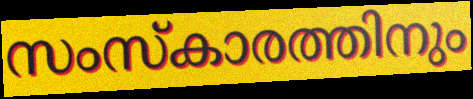
സംസ്കാരത്തിനും